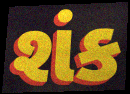
શંક